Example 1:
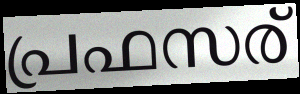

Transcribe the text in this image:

പ്രഫസര്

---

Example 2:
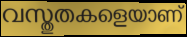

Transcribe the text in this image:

വസ്തുതകളെയാണ്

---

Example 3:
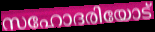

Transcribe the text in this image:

സഹോദരിയോട്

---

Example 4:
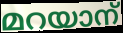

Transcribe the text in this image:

മറയാന്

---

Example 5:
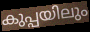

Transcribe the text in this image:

കുപ്പയിലും